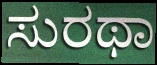
ಸುರಥಾ